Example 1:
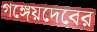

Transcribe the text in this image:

গঙ্গেয়দেবের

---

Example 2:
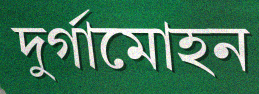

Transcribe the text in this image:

দুর্গামোহন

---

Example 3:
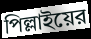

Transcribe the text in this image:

পিল্লাইয়ের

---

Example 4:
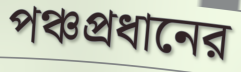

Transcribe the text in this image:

পঞ্চপ্রধানের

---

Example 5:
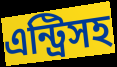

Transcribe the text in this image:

এন্ট্রিসহ